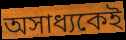
অসাধ্যকেই